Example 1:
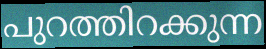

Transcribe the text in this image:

പുറത്തിറക്കുന്ന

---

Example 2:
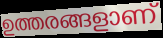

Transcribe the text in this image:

ഉത്തരങ്ങളാണ്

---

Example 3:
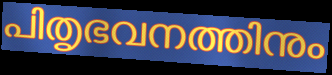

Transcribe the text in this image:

പിതൃഭവനത്തിനും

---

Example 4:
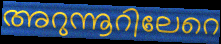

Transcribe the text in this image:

അറുന്നൂറിലേറെ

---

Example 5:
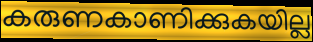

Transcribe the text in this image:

കരുണകാണിക്കുകയില്ല